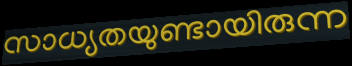
സാധ്യതയുണ്ടായിരുന്ന